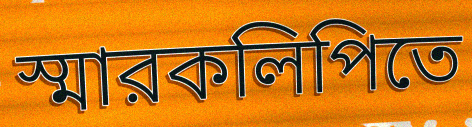
স্মারকলিপিতে